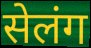
सेलंग